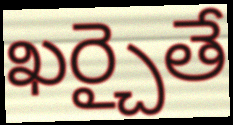
ఖర్చైతే